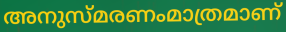
അനുസ്മരണംമാത്രമാണ്